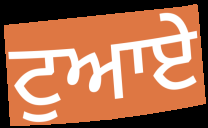
ਟੁਆਏ